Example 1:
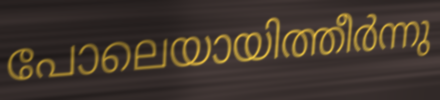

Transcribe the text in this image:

പോലെയായിത്തീർന്നു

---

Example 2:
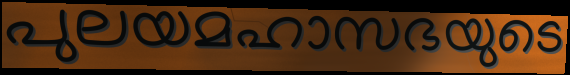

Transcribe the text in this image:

പുലയമഹാസഭയുടെ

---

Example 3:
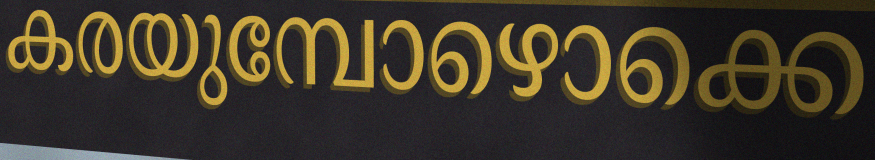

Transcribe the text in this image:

കരയുമ്പോഴൊക്കെ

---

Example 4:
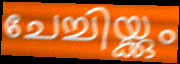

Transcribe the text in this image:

ചേച്ചിയ്ക്കും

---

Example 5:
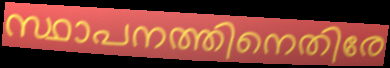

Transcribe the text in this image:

സ്ഥാപനത്തിനെതിരേ